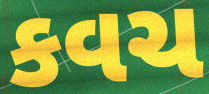
કવચ